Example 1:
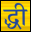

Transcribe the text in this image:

द्धी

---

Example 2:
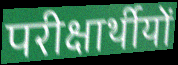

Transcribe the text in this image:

परीक्षार्थीयों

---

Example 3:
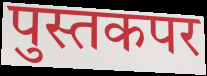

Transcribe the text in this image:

पुस्तकपर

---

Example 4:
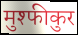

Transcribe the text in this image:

मुश्फीकुर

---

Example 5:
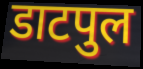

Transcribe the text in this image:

डाटपुल